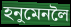
হনুমেনলৈ